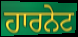
ਹਾਰਨੇਟ